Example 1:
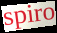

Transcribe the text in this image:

spiro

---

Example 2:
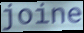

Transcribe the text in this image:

joine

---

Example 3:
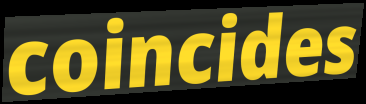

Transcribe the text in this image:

coincides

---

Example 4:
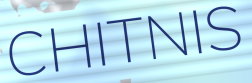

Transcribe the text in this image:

CHITNIS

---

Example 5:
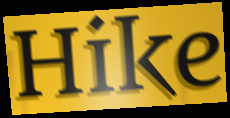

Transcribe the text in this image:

Hike